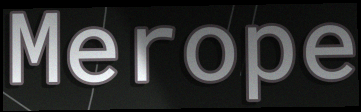
Merope